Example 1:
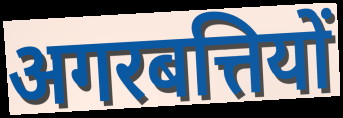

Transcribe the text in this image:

अगरबत्तियों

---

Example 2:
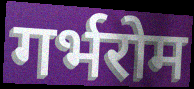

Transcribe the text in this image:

गर्भरोम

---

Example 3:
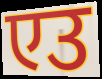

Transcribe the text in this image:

एउ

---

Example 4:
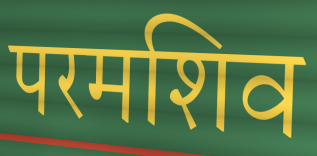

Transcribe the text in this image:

परमशिव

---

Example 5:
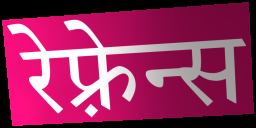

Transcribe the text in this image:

रेफ़्रेन्स